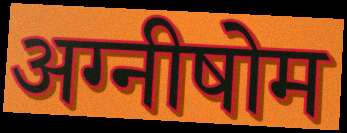
अग्नीषोम